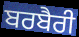
ਬਰਬੈਰੀ